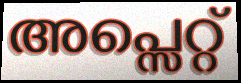
അപ്സെറ്റ്